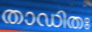
താഡിതഃ